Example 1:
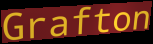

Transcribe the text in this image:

Grafton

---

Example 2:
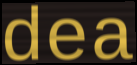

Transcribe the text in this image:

dea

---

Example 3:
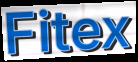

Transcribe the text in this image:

Fitex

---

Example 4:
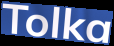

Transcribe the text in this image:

Tolka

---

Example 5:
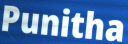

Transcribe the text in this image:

Punitha